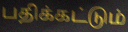
பதிக்கட்டும்